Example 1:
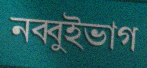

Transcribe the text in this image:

নব্বুইভাগ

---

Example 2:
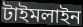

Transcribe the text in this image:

টাইমলাইন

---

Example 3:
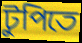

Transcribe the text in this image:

টুপিতে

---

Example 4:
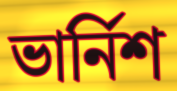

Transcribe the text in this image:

ভার্নিশ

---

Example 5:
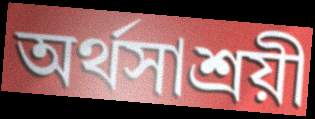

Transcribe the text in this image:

অর্থসাশ্রয়ী